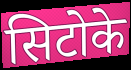
सिटोके